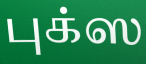
புக்ஸ